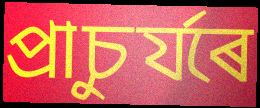
প্ৰাচুৰ্যৰে